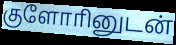
குளோரினுடன்